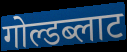
गोल्डब्लाट